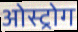
ओस्ट्रोग